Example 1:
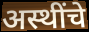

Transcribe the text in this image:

अस्थींचे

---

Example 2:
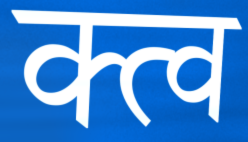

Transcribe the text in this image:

क्त्व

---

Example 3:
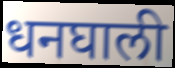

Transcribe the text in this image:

धनघाली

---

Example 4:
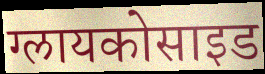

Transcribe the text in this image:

ग्लायकोसाइड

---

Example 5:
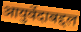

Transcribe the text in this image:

आयुर्वेदाबद्दल